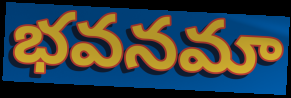
భవనమా